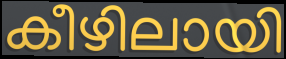
കീഴിലായി